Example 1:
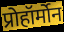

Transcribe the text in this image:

प्रोहॉर्मोन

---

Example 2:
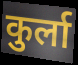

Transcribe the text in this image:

कुर्ला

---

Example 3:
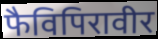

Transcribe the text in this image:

फैविपिरावीर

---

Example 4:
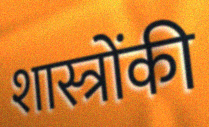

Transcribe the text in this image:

शास्त्रोंकी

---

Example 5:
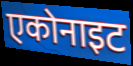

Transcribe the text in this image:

एकोनाइट